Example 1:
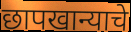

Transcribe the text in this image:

छापखान्याचे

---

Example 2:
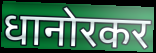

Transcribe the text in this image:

धानोरकर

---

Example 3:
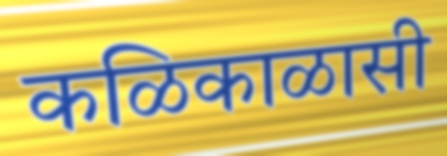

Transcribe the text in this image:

कळिकाळासी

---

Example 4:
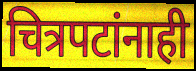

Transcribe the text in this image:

चित्रपटांनाही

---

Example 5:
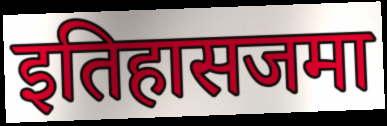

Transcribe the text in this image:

इतिहासजमा